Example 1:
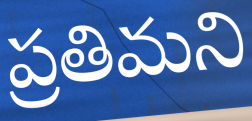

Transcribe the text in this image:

ప్రతిమని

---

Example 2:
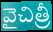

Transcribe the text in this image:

వైచిత్రీ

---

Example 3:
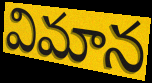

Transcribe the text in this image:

విమాన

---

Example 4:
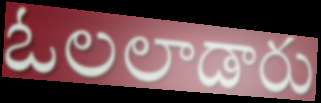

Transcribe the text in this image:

ఓలలాడారు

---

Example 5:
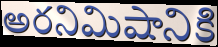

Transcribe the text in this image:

అరనిమిషానికి